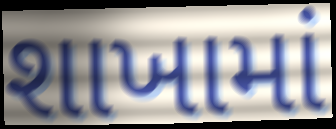
શાખામાં